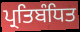
ਪ੍ਰਤਿਬੰਧਿਤ